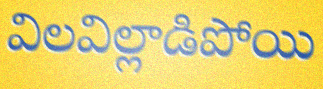
విలవిల్లాడిపోయి